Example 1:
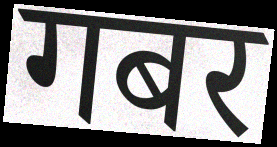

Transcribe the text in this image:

गबर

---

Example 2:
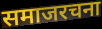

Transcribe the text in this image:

समाजरचना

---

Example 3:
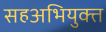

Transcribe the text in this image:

सहअभियुक्त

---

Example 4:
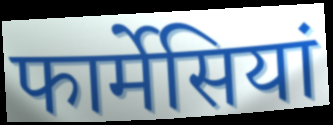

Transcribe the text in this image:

फार्मेसियां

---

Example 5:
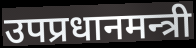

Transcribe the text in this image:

उपप्रधानमन्त्री